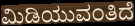
ಮಿಡಿಯುವಂತಿದೆ